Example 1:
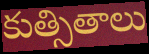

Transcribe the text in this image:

కుత్సితాలు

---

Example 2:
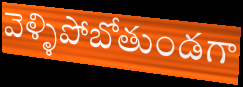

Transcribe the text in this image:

వెళ్ళిపోబోతుండగా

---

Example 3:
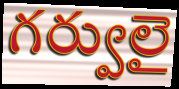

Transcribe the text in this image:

గర్వులై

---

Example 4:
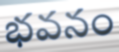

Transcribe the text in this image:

భవనం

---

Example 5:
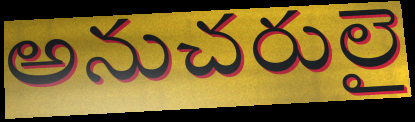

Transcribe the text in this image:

అనుచరులై